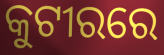
କୁଟୀରରେ